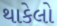
થાકેલો